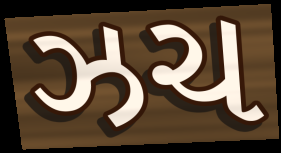
ઝચ